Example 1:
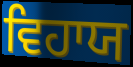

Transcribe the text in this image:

ਵਿਹਾਯ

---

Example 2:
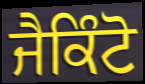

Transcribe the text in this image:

ਜੈਕਿੰਟੋ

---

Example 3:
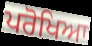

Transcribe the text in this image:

ਪਰੋਖਿਆ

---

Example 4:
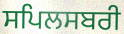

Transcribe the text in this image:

ਸਪਿਲਸਬਰੀ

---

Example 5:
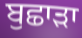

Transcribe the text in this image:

ਬੁਛਾੜਾ